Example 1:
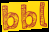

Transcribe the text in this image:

bbl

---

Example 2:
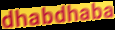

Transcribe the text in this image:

dhabdhaba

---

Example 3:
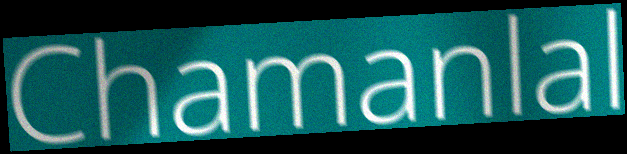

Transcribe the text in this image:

Chamanlal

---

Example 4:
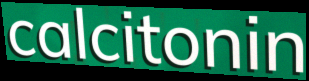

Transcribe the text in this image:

calcitonin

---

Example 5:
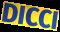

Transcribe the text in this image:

DICCI